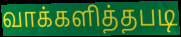
வாக்களித்தபடி